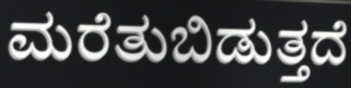
ಮರೆತುಬಿಡುತ್ತದೆ